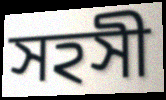
সহসী